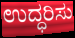
ಉದ್ಧರಿಸು